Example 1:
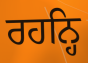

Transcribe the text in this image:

ਰਹਨ੍ਹਿ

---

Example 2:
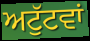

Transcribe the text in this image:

ਅਟੁੱਟਵਾਂ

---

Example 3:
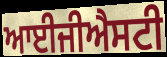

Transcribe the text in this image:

ਆਈਜੀਐਸਟੀ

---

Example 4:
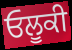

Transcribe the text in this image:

ਓਲੂਕੀ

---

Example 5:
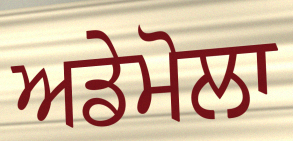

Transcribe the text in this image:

ਅਡੇਮੋਲਾ